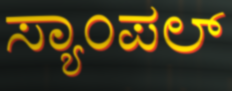
ಸ್ಯಾಂಪಲ್